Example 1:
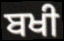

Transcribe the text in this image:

ਬਖੀ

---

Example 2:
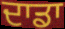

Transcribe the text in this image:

ਦਾਡਾ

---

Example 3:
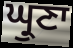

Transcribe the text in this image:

ਘ੍ਰੁਣਾ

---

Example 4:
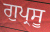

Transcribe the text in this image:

ਗੁਪ੍ਰਸੂ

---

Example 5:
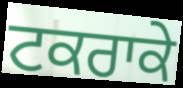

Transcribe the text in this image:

ਟਕਰਾਕੇ